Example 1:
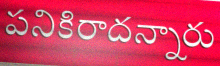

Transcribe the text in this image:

పనికిరాదన్నారు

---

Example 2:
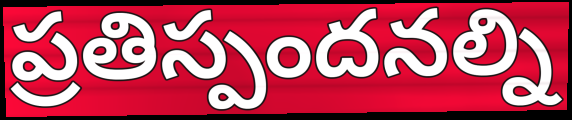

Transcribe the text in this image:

ప్రతిస్పందనల్ని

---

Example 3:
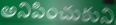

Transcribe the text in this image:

అనిపించుకుని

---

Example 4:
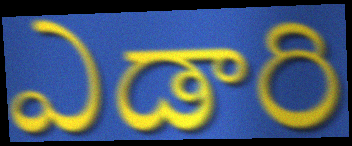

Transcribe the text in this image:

ఎడారి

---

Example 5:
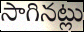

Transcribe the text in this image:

సాగినట్లు